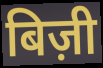
बिज़ी